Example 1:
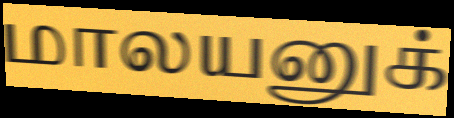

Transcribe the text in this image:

மாலயனுக்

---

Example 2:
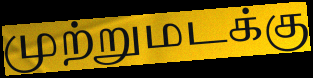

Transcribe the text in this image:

முற்றுமடக்கு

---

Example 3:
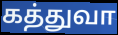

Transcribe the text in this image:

கத்துவா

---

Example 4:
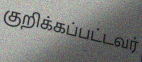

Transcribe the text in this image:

குறிக்கப்பட்டவர்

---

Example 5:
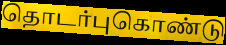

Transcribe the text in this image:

தொடர்புகொண்டு